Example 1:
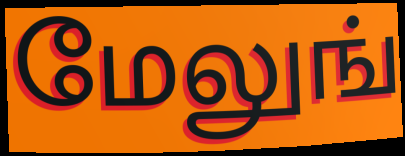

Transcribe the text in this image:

மேலுங்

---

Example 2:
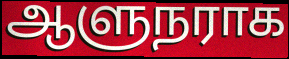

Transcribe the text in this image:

ஆளுநராக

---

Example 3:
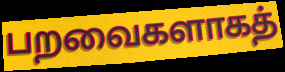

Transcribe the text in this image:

பறவைகளாகத்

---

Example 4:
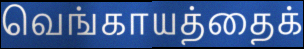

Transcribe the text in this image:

வெங்காயத்தைக்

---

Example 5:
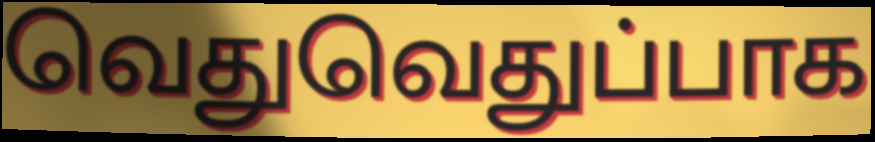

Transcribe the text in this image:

வெதுவெதுப்பாக